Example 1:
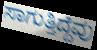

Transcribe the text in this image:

ಸಾಗುತ್ತಿದ್ದೆವು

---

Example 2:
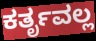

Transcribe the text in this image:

ಕರ್ತೃವಲ್ಲ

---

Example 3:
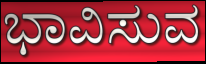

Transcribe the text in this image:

ಭಾವಿಸುವ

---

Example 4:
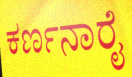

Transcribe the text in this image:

ಕರ್ಣನಾರೈ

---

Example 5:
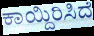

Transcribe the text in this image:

ಕಾಯ್ದಿರಿಸಿದೆ